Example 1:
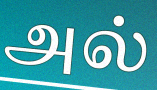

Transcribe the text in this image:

அல்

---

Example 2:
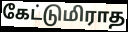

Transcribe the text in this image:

கேட்டுமிராத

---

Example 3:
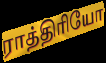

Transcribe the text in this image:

ராத்திரியோ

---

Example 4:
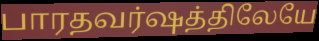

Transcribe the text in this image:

பாரதவர்ஷத்திலேயே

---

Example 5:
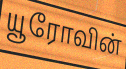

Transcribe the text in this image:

யூரோவின்